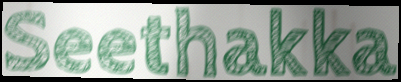
Seethakka